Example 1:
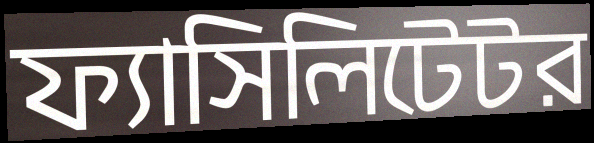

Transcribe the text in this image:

ফ্যাসিলিটেটর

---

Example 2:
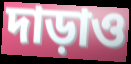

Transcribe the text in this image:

দাড়াও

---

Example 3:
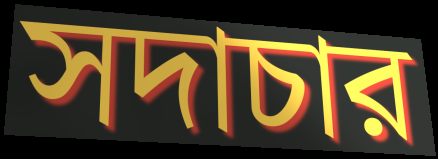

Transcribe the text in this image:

সদাচার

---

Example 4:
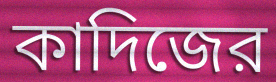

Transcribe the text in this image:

কাদিজের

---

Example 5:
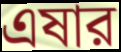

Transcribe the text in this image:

এষার